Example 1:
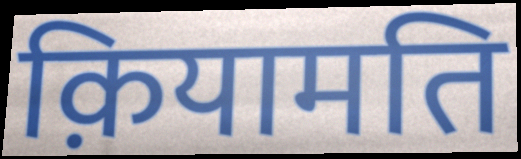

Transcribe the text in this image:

क़ियामति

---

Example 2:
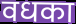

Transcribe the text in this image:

वधका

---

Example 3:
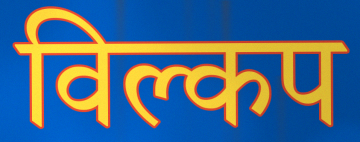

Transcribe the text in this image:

विल्कप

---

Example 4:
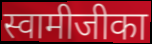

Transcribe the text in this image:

स्वामीजीका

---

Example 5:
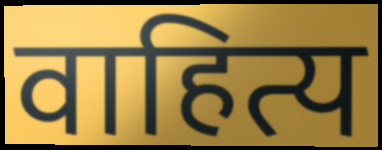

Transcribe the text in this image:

वाहित्य